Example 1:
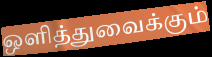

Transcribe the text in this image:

ஒளித்துவைக்கும்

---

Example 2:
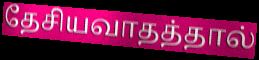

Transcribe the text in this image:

தேசியவாதத்தால்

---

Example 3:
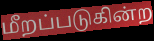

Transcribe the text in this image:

மீறப்படுகின்ற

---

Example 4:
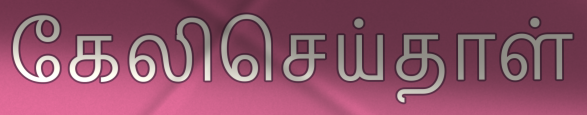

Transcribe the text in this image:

கேலிசெய்தாள்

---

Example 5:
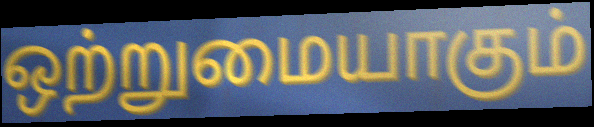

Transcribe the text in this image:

ஒற்றுமையாகும்